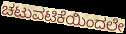
ಚಟುವಟಿಕೆಯಿಂದಲೇ